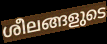
ശീലങ്ങളുടെ